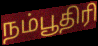
நம்பூதிரி